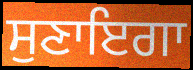
ਸੁਣਾਇਗਾ